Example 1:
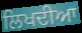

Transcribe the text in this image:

ਲਿਖਦੀਆ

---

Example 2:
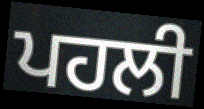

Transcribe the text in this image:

ਪਹਲੀ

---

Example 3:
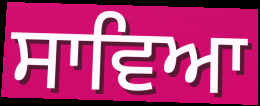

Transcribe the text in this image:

ਸਾਵਿਆ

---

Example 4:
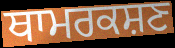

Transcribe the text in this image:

ਥਾਮਰਕਸ਼ਣ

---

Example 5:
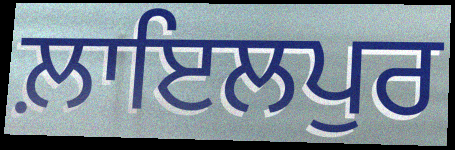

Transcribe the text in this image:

ਲ਼ਾਇਲਪੁਰ